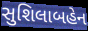
સુશિલાબહેન